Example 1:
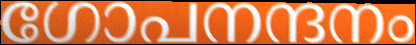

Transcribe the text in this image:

ഗോപനന്ദനം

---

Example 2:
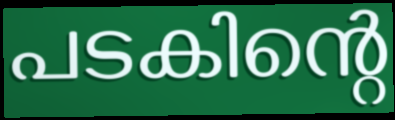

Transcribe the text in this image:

പടകിന്റെ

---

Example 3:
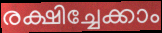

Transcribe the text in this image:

രക്ഷിച്ചേക്കാം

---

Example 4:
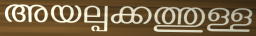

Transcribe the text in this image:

അയല്പക്കത്തുള്ള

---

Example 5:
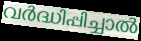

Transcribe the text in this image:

വർദ്ധിപ്പിച്ചാൽ